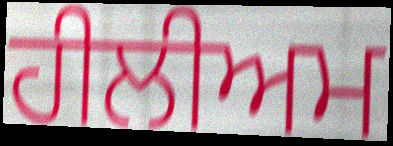
ਹੀਲੀਅਮ